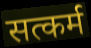
सत्कर्म